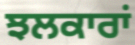
ਝਲਕਾਰਾਂ